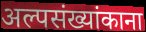
अल्पसंख्यांकाना